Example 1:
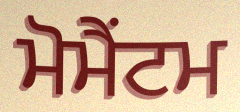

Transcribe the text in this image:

ਮੋਮੈਂਟਮ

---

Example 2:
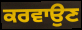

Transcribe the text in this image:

ਕਰਵਾਉਣ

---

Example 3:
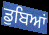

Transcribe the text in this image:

ਡੁਬਿਆਂ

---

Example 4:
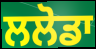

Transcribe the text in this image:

ਲਲੋਡਾ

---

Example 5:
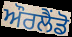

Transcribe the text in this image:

ਔਰਲੈਂਡੋ